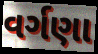
વર્ગણા